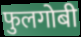
फुलगोबी